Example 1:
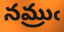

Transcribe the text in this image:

నమ్రుఁ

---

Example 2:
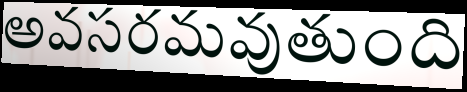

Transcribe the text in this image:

అవసరమవుతుంది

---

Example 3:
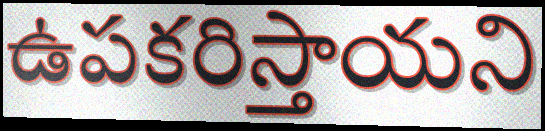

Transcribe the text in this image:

ఉపకరిస్తాయని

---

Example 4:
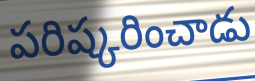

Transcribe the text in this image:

పరిష్కరించాడు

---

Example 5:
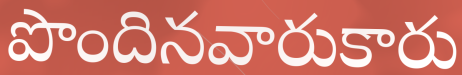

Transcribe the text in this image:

పొందినవారుకారు